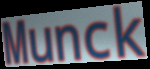
Munck